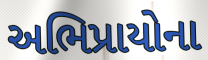
અભિપ્રાયોના